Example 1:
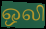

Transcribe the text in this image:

ஒலி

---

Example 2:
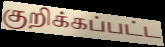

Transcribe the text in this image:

குறிக்கப்பட்ட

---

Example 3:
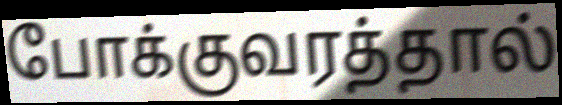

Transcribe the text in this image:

போக்குவரத்தால்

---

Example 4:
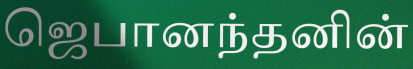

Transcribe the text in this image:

ஜெபானந்தனின்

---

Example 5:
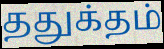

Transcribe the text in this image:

ததுக்தம்